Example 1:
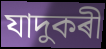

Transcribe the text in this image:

যাদুকৰী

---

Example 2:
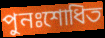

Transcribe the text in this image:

পুনঃশোধিত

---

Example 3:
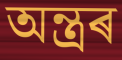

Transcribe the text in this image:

অন্ত্ৰৰ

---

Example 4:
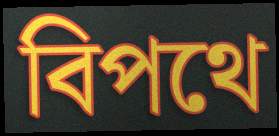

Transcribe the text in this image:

বিপথে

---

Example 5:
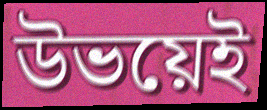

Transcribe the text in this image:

উভয়েই